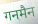
गनमैन